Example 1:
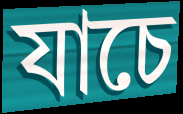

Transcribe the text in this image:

যাচে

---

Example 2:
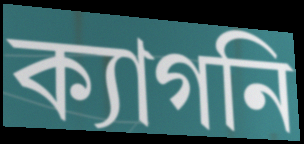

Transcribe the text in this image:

ক্যাগনি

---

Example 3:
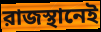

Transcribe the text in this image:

রাজস্থানেই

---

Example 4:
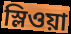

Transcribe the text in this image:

স্লিওয়া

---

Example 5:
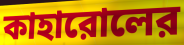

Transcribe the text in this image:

কাহারোলের